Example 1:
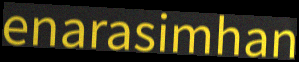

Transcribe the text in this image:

enarasimhan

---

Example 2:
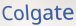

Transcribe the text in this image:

Colgate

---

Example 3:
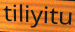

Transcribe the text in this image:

tiliyitu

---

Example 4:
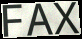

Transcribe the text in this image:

FAX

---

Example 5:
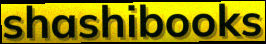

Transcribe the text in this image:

shashibooks